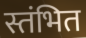
स्तंभित